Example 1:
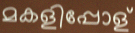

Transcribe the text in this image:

മകളിപ്പോള്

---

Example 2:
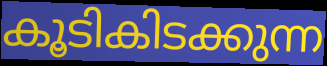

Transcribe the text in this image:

കൂടികിടക്കുന്ന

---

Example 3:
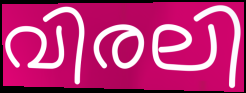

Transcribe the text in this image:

വിരലി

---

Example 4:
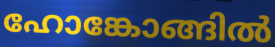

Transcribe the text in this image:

ഹോങ്കോങ്ങിൽ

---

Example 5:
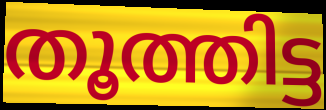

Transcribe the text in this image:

തൂത്തിട്ട